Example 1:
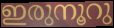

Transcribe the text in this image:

ഇരുനൂറു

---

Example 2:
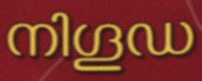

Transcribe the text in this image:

നിഗൂഡ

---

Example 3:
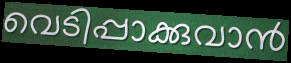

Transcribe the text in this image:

വെടിപ്പാക്കുവാൻ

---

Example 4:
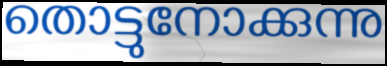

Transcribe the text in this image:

തൊട്ടുനോക്കുന്നു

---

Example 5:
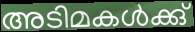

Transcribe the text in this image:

അടിമകൾക്കു്